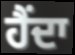
ਹੈਂਦਾ